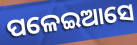
ପଳେଇଆସେ